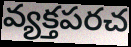
వ్యక్తపరచ